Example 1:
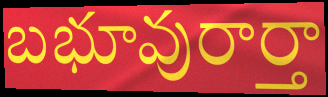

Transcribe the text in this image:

బభూవురార్తా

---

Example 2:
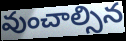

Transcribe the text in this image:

వుంచాల్సిన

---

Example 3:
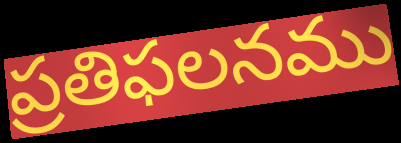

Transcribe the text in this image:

ప్రతిఫలనము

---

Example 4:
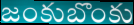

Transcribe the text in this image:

జంకుబొంకు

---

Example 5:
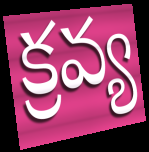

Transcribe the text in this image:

క్రవ్య